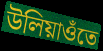
উলিয়াওঁতে